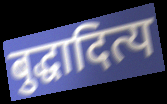
बुद्धादित्य